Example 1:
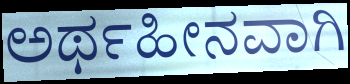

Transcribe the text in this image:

ಅರ್ಥಹೀನವಾಗಿ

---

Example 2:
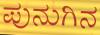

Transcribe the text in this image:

ಪುನುಗಿನ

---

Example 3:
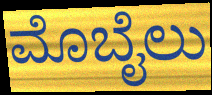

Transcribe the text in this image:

ಮೊಬೈಲು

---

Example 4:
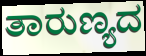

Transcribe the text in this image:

ತಾರುಣ್ಯದ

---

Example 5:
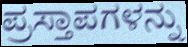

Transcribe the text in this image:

ಪ್ರಸ್ತಾಪಗಳನ್ನು